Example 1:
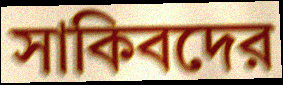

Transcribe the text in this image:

সাকিবদের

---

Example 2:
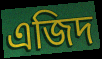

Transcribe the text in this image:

এজিদ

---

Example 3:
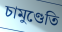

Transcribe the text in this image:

চামুণ্ডেতি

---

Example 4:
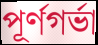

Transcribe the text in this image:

পূর্ণগর্ভা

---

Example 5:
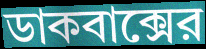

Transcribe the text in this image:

ডাকবাক্সের